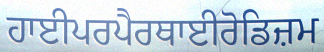
ਹਾਈਪਰਪੈਰਥਾਈਰੋਡਿਜ਼ਮ